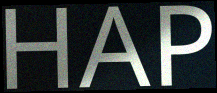
HAP